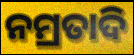
ନମ୍ରତାଦି